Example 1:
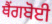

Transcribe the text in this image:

ਥੈਂਗਬੋਈ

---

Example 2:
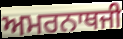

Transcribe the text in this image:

ਅਮਰਨਾਥਜੀ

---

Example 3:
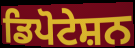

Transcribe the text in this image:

ਡਿਪੋਟੇਸ਼ਨ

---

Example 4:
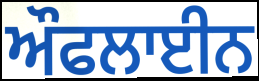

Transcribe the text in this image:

ਔਫਲਾਈਨ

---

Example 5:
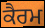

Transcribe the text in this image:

ਕੈਰਮ